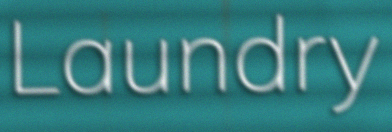
Laundry